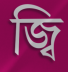
জ্বি